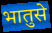
भातुसे